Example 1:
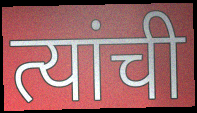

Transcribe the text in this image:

त्यांची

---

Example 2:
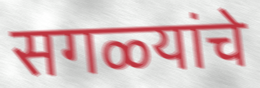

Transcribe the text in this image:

सगळ्यांचे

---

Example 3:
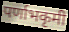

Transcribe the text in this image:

पर्णाभकृमी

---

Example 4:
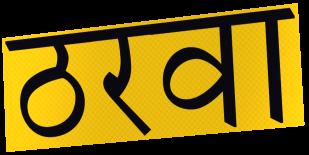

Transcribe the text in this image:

ठरवा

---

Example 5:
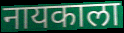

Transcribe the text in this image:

नायकाला